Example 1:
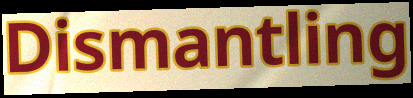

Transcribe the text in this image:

Dismantling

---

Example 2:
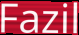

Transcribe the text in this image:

Fazil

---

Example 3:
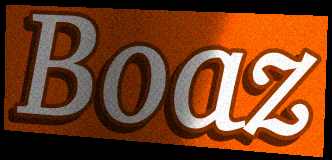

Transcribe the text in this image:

Boaz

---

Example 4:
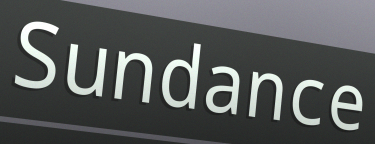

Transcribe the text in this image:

Sundance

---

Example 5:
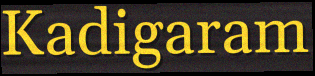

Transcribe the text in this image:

Kadigaram